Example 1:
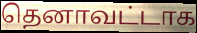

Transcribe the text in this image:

தெனாவட்டாக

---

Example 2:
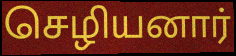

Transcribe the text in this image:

செழியனார்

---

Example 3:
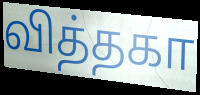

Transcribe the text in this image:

வித்தகா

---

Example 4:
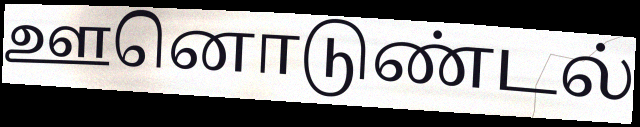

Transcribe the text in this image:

ஊனொடுண்டல்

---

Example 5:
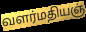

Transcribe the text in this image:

வளர்மதியஞ்